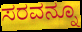
ಸರವನ್ನೂ